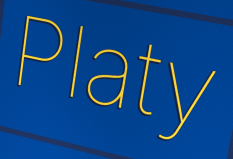
Platy